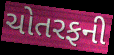
ચોતરફની